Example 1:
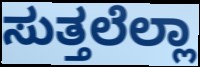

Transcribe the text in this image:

ಸುತ್ತಲೆಲ್ಲಾ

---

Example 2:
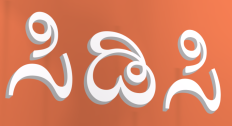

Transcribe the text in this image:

ಸಿಡಿಸಿ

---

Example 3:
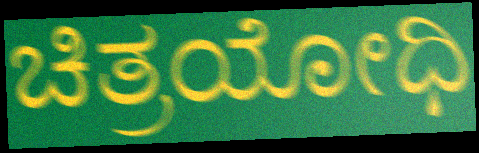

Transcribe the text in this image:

ಚಿತ್ರಯೋಧಿ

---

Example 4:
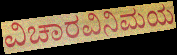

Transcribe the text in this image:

ವಿಚಾರವಿನಿಮಯ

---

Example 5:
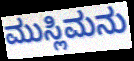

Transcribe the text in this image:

ಮುಸ್ಲಿಮನು